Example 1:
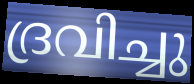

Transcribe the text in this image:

ദ്രവിച്ചു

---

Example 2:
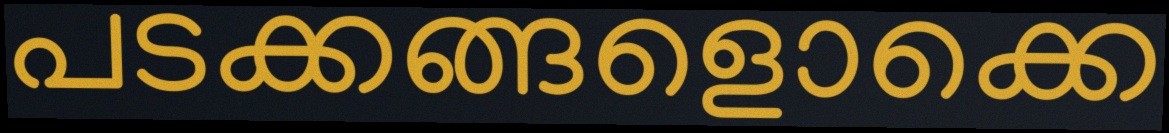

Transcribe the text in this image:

പടക്കങ്ങളൊക്കെ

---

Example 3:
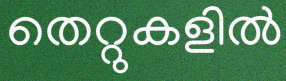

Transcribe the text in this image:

തെറ്റുകളിൽ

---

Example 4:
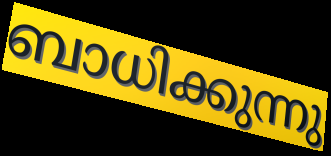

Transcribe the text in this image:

ബാധിക്കുന്നു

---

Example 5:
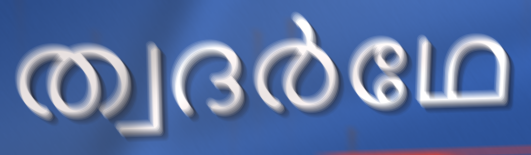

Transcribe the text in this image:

ത്വദർഥേ